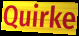
Quirke